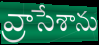
వ్రాసేశాను